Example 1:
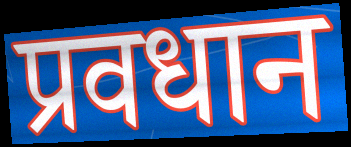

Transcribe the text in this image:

प्रवधान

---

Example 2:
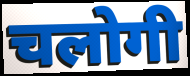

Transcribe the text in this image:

चलोगी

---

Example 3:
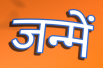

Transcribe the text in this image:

जन्में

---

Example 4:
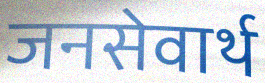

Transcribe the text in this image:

जनसेवार्थ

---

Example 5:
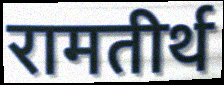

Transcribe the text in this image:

रामतीर्थ